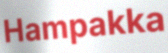
Hampakka